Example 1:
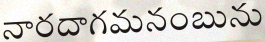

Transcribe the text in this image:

నారదాగమనంబును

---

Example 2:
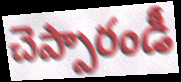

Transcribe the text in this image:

చెప్పారండీ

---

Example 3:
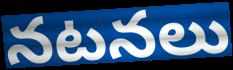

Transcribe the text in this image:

నటనలు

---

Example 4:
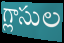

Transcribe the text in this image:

గ్లాసుల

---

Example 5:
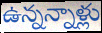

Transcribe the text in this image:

ఉన్నన్నాళ్లు